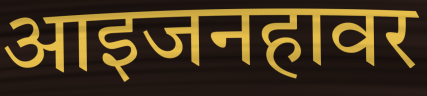
आइजनहावर